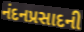
નંદનપ્રસાદની